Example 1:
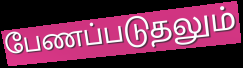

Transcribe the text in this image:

பேணப்படுதலும்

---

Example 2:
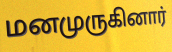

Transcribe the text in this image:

மனமுருகினார்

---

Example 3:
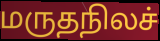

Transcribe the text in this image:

மருதநிலச்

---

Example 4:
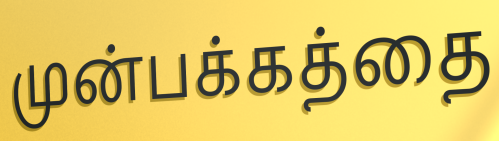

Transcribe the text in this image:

முன்பக்கத்தை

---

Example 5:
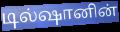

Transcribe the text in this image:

டில்ஷானின்